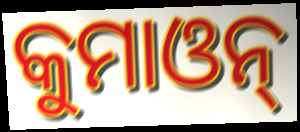
କୁମାଓନ୍